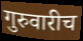
गुरुवारीच